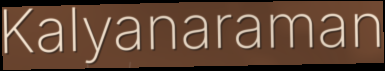
Kalyanaraman